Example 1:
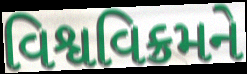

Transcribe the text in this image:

વિશ્વવિક્રમને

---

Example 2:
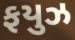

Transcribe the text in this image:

ફયુઝ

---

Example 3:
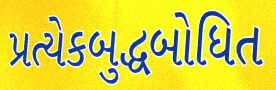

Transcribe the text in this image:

પ્રત્યેકબુદ્ધબોધિત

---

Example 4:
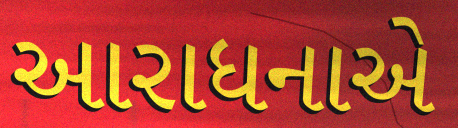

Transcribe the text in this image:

આરાધનાએ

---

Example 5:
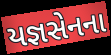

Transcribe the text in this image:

યજ્ઞસેનના